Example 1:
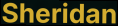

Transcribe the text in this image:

Sheridan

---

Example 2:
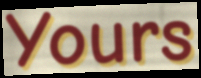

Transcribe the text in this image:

Yours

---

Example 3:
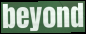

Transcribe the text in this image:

beyond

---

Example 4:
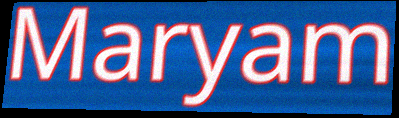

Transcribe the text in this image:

Maryam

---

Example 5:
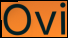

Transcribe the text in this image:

Ovi